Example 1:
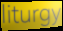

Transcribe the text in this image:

liturgy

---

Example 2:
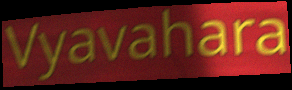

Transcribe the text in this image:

Vyavahara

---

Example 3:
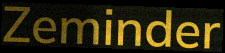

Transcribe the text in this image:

Zeminder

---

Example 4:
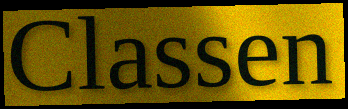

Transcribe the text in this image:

Classen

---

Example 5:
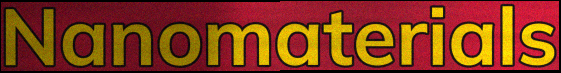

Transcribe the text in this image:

Nanomaterials